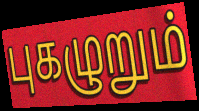
புகழுறும்